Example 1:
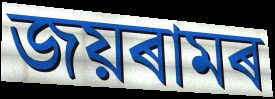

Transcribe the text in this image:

জয়ৰামৰ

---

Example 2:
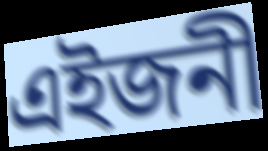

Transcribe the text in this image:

এইজনী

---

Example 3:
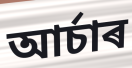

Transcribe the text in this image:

আৰ্চাৰ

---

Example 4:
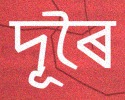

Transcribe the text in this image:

দূৰৈ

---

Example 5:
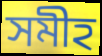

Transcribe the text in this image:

সমীহ